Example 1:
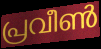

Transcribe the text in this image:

പ്രവീൺ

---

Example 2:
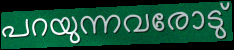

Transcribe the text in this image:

പറയുന്നവരോടു്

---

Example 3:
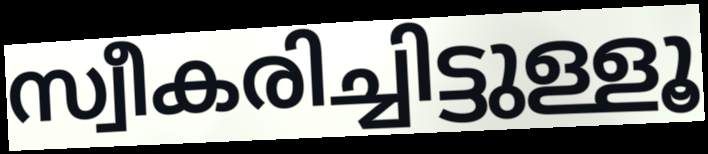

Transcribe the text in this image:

സ്വീകരിച്ചിട്ടുള്ളൂ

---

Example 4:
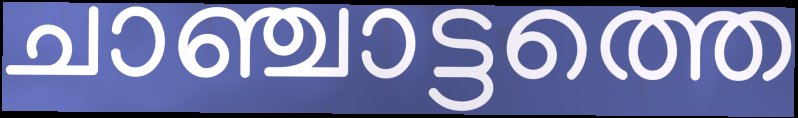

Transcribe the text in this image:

ചാഞ്ചാട്ടത്തെ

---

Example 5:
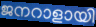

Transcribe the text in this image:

ജനറാളായി